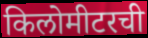
किलोमीटरची